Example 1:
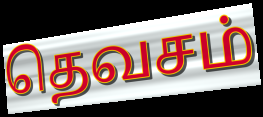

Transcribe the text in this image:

தெவசம்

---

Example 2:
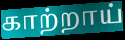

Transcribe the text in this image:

காற்றாய்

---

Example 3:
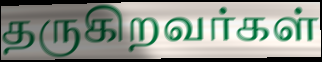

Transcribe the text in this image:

தருகிறவர்கள்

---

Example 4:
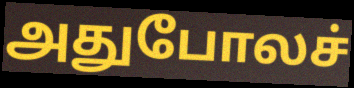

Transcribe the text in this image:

அதுபோலச்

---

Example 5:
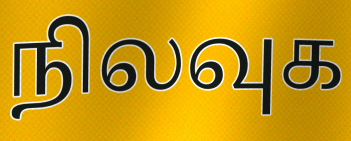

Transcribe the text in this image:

நிலவுக